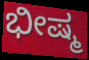
ಭೀಷ್ಮ